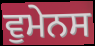
ਵੁਮੇਨਸ